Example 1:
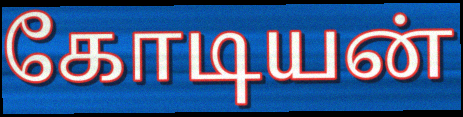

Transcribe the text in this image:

கோடியன்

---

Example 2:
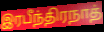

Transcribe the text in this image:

இரபீந்திரநாத்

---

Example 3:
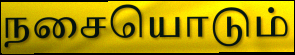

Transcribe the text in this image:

நசையொடும்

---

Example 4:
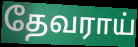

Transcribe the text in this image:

தேவராய்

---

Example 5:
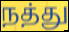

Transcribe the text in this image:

நத்து